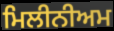
ਮਿਲੀਨੀਅਮ